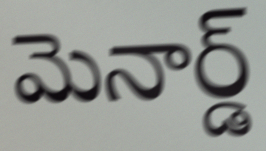
మెనార్డ్